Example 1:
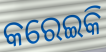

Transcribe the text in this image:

କରେଇକି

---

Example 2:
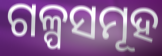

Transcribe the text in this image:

ଗଳ୍ପସମୂହ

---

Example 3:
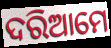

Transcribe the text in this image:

ଦରିଆମେ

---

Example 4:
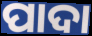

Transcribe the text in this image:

ପାଦା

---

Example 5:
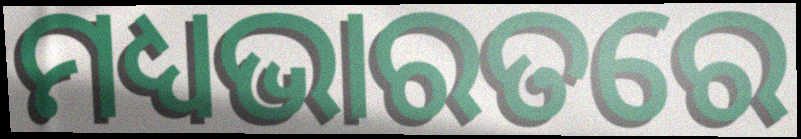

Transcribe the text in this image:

ମଧ୍ୟଭାରତରେ